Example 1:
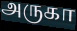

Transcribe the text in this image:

அருகா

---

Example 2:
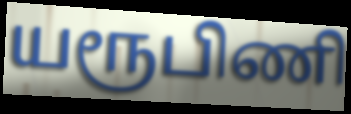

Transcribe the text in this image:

யரூபிணி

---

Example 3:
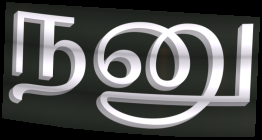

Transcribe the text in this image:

நனு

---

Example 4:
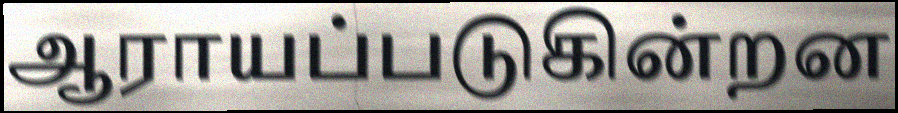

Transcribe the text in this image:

ஆராயப்படுகின்றன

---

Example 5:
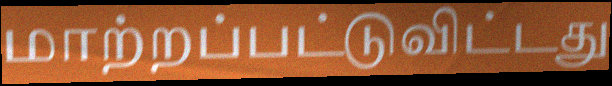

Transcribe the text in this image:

மாற்றப்பட்டுவிட்டது